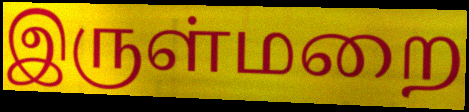
இருள்மறை